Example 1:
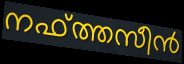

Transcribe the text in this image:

നഫ്ത്തസീൻ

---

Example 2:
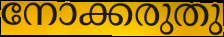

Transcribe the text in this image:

നോക്കരുതു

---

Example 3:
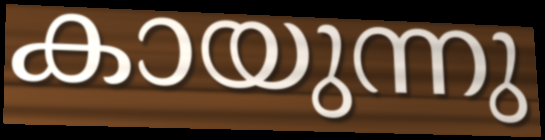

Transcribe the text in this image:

കായുന്നു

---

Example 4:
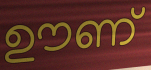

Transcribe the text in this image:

ഊണ്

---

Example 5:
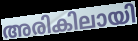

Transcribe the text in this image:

അരികിലായി